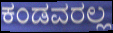
ಕಂಡವರಲ್ಲ